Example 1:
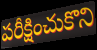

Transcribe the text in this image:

పరీక్షించుకొని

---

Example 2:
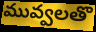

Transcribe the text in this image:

మువ్వలతొ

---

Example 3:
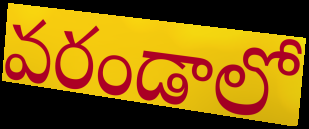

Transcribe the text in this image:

వరండాలో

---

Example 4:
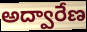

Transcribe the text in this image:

అద్వారేణ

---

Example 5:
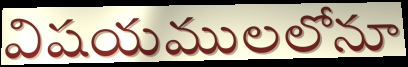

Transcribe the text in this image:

విషయములలోనూ